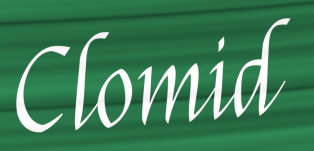
Clomid